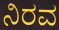
ನಿರವ